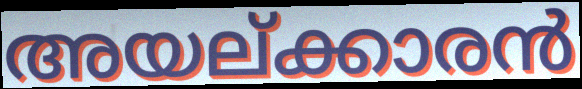
അയല്ക്കാരൻ